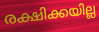
രക്ഷിക്കയില്ല